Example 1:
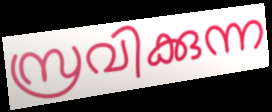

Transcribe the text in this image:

സ്രവിക്കുന്ന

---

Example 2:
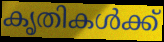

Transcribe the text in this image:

കൃതികൾക്ക്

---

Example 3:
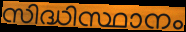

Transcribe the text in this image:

സിദ്ധിസ്ഥാനം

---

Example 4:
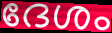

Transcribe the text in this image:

ദേശം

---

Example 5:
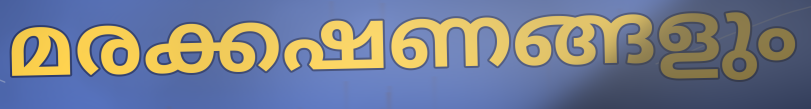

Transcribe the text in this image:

മരക്കഷണങ്ങളും